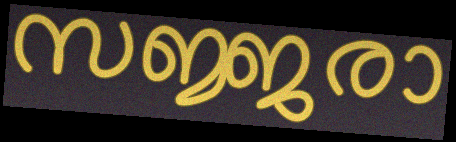
സജ്ജരാ